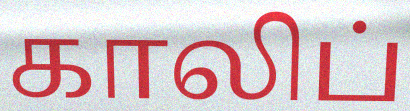
காலிப்